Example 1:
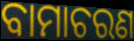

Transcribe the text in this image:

ବାମାଚରଣ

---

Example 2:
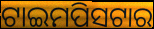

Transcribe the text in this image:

ଟାଇମପିସଟାର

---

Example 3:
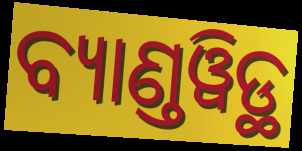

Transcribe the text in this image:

ବ୍ୟାଣ୍ଡୱିଡ୍ଥ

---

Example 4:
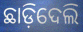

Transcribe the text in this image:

ଛାଡ଼ିଦେଲି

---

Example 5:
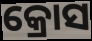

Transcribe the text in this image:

କ୍ରୋସ